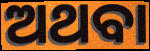
ଅଥବା